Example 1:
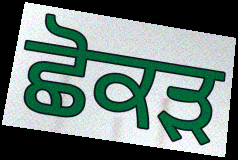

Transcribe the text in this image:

ਛੋਕੜ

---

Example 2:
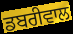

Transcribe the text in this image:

ਡਬਰੀਵਾਲ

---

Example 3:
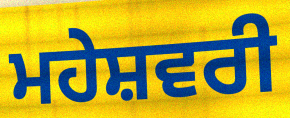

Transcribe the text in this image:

ਮਹੇਸ਼ਵਰੀ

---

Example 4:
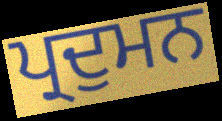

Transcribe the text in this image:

ਪ੍ਰਦੁਮਨ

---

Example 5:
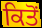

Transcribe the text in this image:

ਕਿਤੋਂ